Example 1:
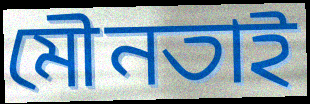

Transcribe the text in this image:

মৌনতাই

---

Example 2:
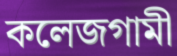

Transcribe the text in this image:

কলেজগামী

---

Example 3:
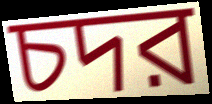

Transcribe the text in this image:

চদর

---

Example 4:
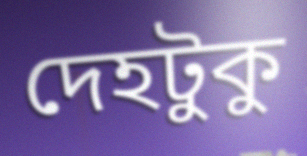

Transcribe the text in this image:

দেহটুকু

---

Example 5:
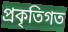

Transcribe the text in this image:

প্রকৃতিগত